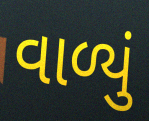
વાળ્યું